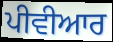
ਪੀਵੀਆਰ